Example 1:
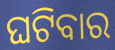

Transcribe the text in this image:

ଘଟିବାର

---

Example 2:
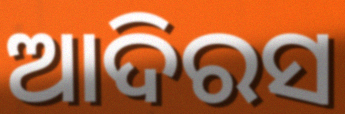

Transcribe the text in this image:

ଆଦିରସ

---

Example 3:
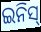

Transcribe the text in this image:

ଇନିସ୍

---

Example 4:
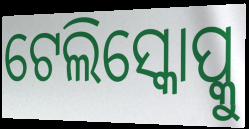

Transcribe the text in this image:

ଟେଲିସ୍କୋପ୍କୁ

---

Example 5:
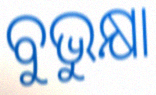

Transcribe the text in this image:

ବୁଭୁକ୍ଷା